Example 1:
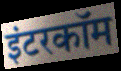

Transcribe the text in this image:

इंटरकॉम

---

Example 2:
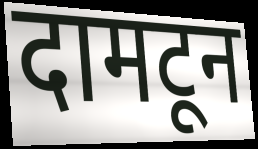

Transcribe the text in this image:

दामटून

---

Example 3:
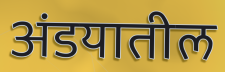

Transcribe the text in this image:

अंडयातील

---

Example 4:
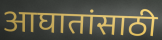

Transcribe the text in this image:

आघातांसाठी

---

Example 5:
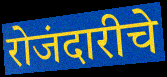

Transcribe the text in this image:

रोजंदारीचे